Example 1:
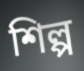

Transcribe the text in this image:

শিল্প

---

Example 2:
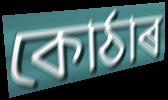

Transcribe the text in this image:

কোঠাৰ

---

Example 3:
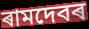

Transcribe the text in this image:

ৰামদেবৰ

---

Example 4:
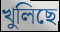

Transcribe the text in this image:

খুলিছে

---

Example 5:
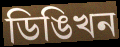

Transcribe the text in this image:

ডিঙিখন